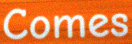
Comes